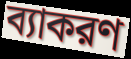
ব্যাকরণ